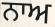
ਨਾਅ